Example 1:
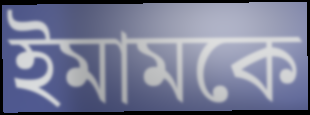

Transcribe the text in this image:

ইমামকে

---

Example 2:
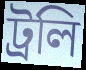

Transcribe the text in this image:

ট্রলি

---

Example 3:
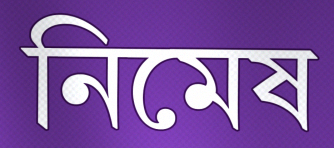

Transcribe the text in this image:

নিমেষ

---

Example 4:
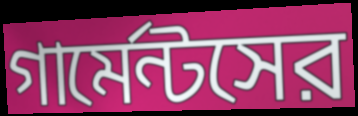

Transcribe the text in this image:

গার্মেন্টসের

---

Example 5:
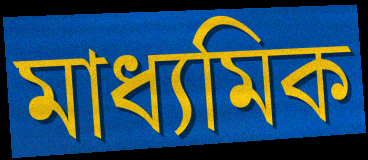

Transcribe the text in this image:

মাধ্যমিক